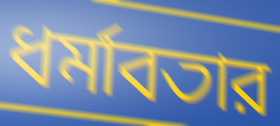
ধর্মাবতার